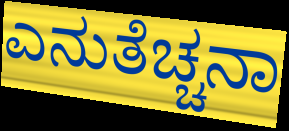
ಎನುತೆಚ್ಚನಾ